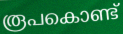
രൂപകൊണ്ട്